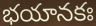
భయానకః